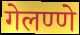
गेलण्णे